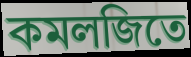
কমলজিতে